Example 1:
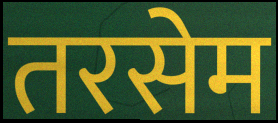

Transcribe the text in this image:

तरसेम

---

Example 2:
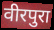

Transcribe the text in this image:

वीरपुरा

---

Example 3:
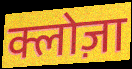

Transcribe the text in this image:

क्लोज़ा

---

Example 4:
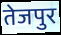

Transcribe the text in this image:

तेजपुर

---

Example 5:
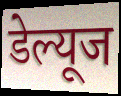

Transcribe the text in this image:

डेल्यूज